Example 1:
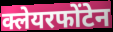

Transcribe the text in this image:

क्लेयरफोंटेन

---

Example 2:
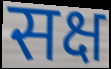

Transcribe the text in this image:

सक्ष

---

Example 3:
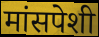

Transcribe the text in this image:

मांसपेशी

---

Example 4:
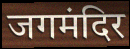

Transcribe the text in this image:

जगमंदिर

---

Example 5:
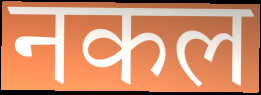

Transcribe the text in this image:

नकल